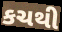
કચથી